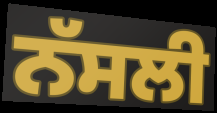
ਨੱਸਲੀ